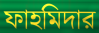
ফাহমিদার